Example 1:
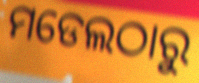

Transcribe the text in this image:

ମଡେଲଠାରୁ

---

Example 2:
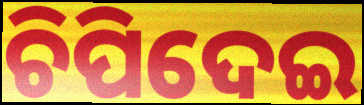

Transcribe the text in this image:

ଚିପିଦେଇ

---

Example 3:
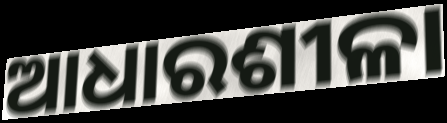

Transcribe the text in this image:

ଆଧାରଶୀଳା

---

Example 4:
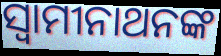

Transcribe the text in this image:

ସ୍ଵାମୀନାଥନଙ୍କ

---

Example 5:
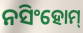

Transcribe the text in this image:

ନସିଂହୋମ୍